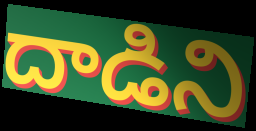
దాడిని